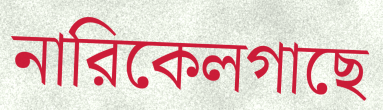
নারিকেলগাছে